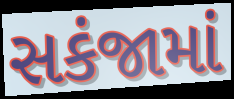
સકંજામાં